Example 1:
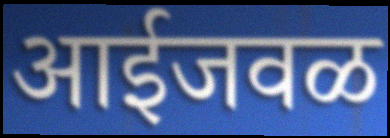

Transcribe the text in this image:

आईजवळ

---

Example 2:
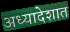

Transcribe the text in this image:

अध्यादेशात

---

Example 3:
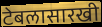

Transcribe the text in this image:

टेबलासारखी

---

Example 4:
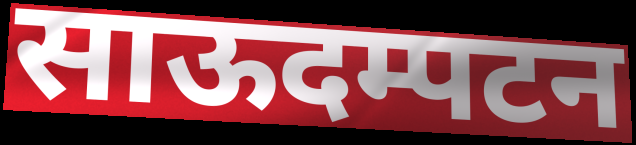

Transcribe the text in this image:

साऊदम्पटन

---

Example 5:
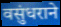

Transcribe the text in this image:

वसुंधराने